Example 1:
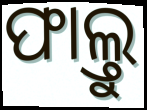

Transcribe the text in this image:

ଫାଲ୍ତୁ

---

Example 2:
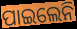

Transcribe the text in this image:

ପାଇଲେନି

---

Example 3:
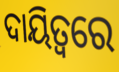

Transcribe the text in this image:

ଦାୟିତ୍ୱରେ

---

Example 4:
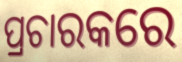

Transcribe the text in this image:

ପ୍ରଚାରକରେ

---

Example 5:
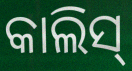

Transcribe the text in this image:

କାଲିସ୍